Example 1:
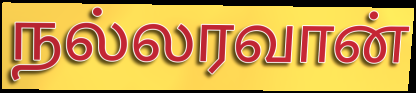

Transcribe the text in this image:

நல்லரவான்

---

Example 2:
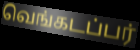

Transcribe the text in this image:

வெங்கடப்பர்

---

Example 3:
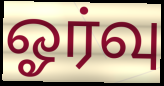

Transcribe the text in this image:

ஓர்வு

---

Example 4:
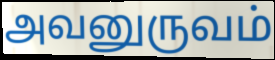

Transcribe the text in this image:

அவனுருவம்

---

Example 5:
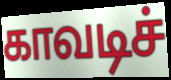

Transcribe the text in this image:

காவடிச்